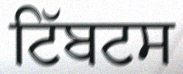
ਟਿੱਬਟਸ